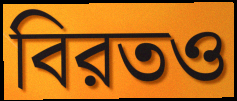
বিরতও